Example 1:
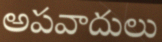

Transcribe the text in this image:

అపవాదులు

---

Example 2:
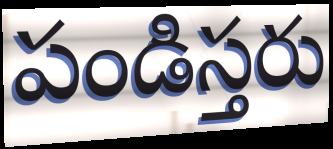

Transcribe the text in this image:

పండిస్తరు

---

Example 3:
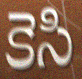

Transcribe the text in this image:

కెసి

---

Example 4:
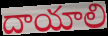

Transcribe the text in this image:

దాయాలి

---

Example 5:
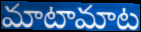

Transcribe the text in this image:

మాటామాట